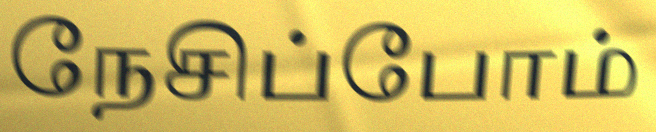
நேசிப்போம்